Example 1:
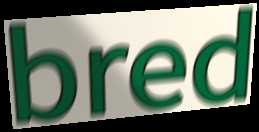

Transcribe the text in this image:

bred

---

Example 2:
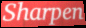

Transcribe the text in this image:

Sharpen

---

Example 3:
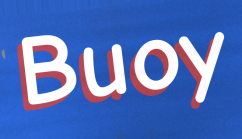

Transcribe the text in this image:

Buoy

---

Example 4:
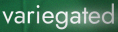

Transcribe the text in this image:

variegated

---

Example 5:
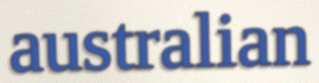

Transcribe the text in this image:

australian